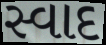
સ્વાદ